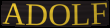
ADOLF